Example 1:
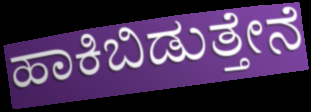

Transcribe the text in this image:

ಹಾಕಿಬಿಡುತ್ತೇನೆ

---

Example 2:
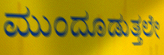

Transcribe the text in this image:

ಮುಂದೂಡುತ್ತಲೇ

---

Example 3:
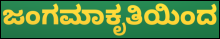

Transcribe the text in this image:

ಜಂಗಮಾಕೃತಿಯಿಂದ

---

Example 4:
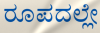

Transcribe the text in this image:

ರೂಪದಲ್ಲೇ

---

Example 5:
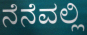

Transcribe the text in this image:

ನೆನೆವಲ್ಲಿ